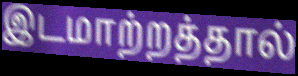
இடமாற்றத்தால்